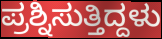
ಪ್ರಶ್ನಿಸುತ್ತಿದ್ದಳು